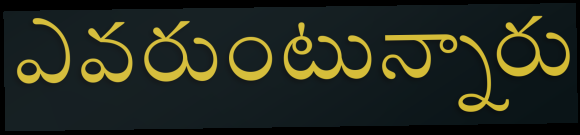
ఎవరుంటున్నారు